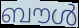
ബൗൾ